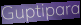
Guptipara